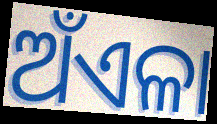
ଅଁଏଳା